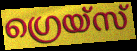
ഗ്രെയ്സ്